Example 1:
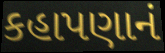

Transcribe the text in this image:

કહાપણાનં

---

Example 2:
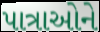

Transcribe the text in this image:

પાત્રાઓને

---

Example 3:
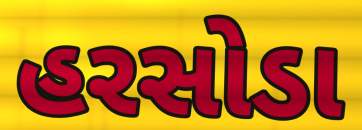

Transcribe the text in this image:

હરસોડા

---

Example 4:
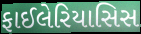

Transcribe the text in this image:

ફાઈલેરિયાસિસ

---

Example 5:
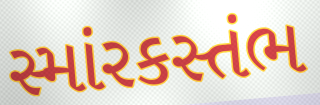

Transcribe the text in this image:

સ્માંરકસ્તંભ